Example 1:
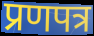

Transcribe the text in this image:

प्रणपत्र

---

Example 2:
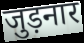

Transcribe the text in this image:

जुड़नार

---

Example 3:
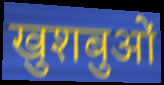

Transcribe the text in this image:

खुशबुओं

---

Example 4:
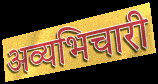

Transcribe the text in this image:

अव्यभिचारी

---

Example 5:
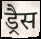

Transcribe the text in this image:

ड्रैस